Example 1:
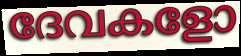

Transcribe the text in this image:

ദേവകളോ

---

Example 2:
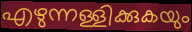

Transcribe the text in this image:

എഴുന്നള്ളിക്കുകയും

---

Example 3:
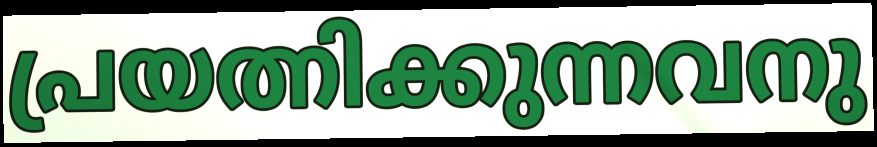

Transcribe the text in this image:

പ്രയത്നിക്കുന്നവനു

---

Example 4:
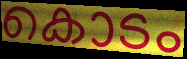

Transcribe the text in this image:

കൊടം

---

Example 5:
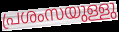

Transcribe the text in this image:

പ്രശംസയുള്ളു